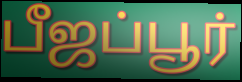
பீஜப்பூர்